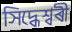
সিদ্ধেশ্বৰী